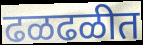
ढळढळीत